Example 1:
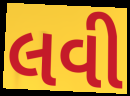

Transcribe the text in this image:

લવી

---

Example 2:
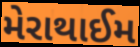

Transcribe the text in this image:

મેરાથાઈમ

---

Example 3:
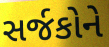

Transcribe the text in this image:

સર્જકોને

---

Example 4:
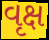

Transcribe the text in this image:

વૃક્ષ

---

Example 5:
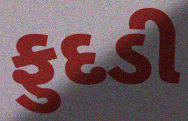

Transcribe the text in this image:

ફુદડી